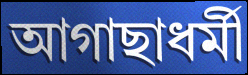
আগাছাধর্মী